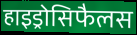
हाइड्रोसिफैलस